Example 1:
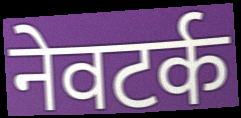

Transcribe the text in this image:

नेवटर्क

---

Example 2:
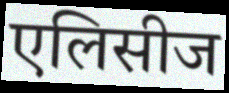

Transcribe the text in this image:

एलिसीज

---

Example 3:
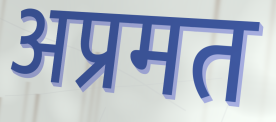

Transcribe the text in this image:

अप्रमत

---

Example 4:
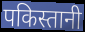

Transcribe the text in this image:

पकिस्तानी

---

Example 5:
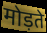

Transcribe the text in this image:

मोड़ते